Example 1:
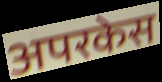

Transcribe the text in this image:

अपरकेस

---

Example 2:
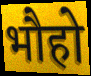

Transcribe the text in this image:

भौहो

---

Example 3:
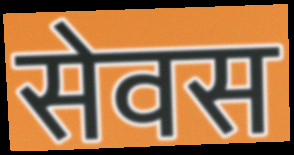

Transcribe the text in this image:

सेवस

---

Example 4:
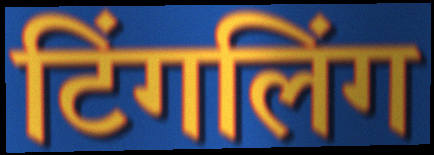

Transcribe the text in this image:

टिंगलिंग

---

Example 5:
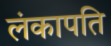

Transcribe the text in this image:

लंकापति